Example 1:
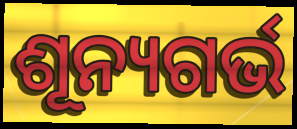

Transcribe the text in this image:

ଶୂନ୍ୟଗର୍ଭ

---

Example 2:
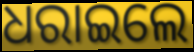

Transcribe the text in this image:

ଧରାଇଲେ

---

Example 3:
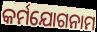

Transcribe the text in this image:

କର୍ମଯୋଗନାମ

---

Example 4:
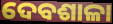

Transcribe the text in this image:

ଦେବଶାଳା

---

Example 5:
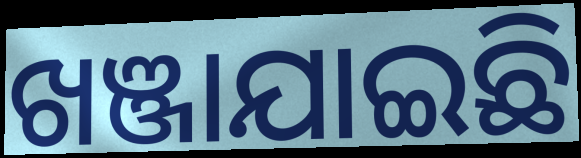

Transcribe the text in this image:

ଖଞ୍ଜାଯାଇଛି